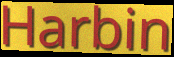
Harbin